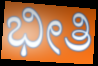
ಭೀತಿ